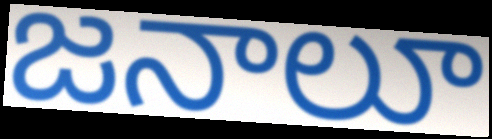
జనాలూ